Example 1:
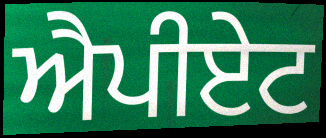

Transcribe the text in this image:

ਐਪੀਏਟ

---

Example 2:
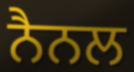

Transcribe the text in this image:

ਨੈਨਲ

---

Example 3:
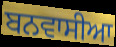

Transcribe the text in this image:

ਬਨਵਾਸੀਆ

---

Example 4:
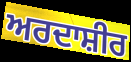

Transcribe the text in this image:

ਅਰਦਾਸ਼ੀਰ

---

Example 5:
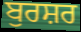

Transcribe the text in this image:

ਬੁਰਸ਼ਰ